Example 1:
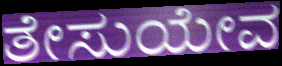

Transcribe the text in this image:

ತೇಸುಯೇವ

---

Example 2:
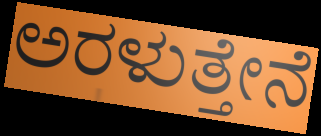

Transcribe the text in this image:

ಅರಳುತ್ತೇನೆ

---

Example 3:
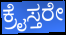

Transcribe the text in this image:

ಕ್ರೈಸ್ತರೇ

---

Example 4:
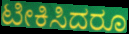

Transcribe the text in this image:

ಟೀಕಿಸಿದರೂ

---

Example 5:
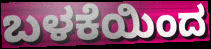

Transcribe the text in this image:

ಬಳಕೆಯಿಂದ